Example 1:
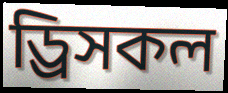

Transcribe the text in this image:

ড্রিসকল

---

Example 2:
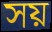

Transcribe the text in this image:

সয়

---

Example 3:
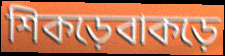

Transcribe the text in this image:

শিকড়েবাকড়ে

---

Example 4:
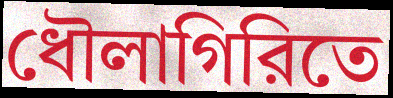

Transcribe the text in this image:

ধৌলাগিরিতে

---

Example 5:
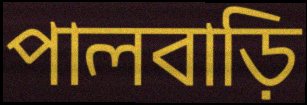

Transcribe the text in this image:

পালবাড়ি